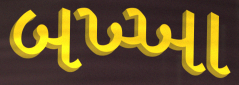
બખ્ખા